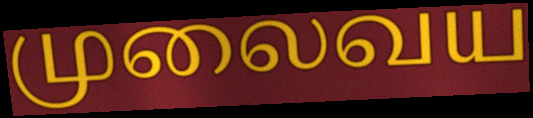
முலைவய